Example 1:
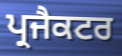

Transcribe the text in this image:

ਪ੍ਰਜੈਕਟਰ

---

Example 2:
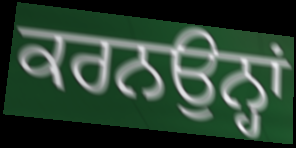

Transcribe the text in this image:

ਕਰਨਉਨ੍ਹਾਂ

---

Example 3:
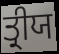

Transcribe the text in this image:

ਤ੍ਰੀਯ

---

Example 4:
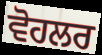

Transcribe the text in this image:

ਵੋਹਲਰ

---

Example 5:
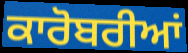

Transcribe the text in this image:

ਕਾਰੋਬਰੀਆਂ